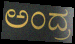
ಅಂದ್ರ